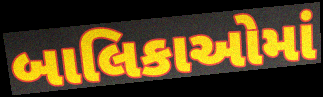
બાલિકાઓમાં